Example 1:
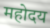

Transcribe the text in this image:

महोदय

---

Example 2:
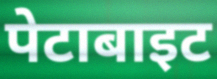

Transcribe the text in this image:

पेटाबाइट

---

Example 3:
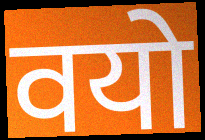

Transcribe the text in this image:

वयो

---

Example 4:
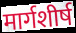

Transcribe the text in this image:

मार्गशीर्ष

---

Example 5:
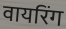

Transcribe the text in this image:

वायरिंग